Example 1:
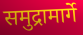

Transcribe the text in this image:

समुद्रामार्गे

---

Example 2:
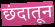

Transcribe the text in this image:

छंदातून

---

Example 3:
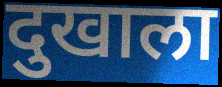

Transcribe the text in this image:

दुखाला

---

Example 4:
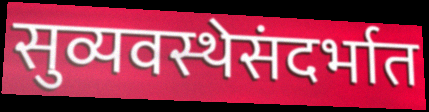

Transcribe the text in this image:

सुव्यवस्थेसंदर्भात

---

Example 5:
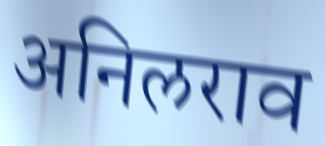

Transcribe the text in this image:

अनिलराव